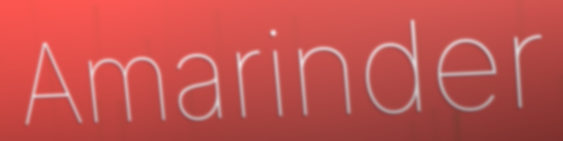
Amarinder